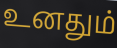
உனதும்